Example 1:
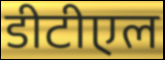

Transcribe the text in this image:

डीटीएल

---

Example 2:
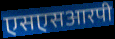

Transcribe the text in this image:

एसएसआरपी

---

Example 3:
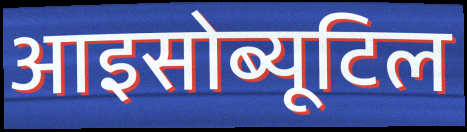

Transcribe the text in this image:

आइसोब्यूटिल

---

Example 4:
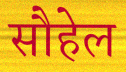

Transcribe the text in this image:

सौहेल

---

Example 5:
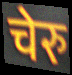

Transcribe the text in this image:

चेरु